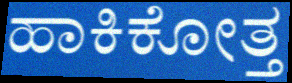
ಹಾಕಿಕೋತ್ತ